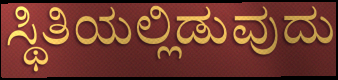
ಸ್ಥಿತಿಯಲ್ಲಿಡುವುದು